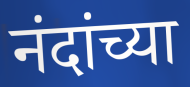
नंदांच्या